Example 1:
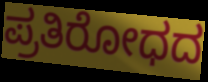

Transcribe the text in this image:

ಪ್ರತಿರೋಧದ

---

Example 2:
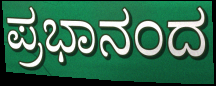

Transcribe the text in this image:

ಪ್ರಭಾನಂದ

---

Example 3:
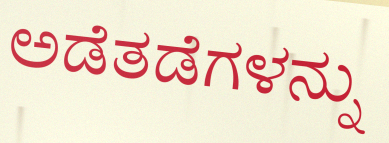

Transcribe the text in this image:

ಅಡೆತಡೆಗಳನ್ನು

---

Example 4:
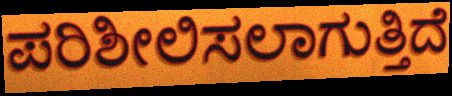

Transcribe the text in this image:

ಪರಿಶೀಲಿಸಲಾಗುತ್ತಿದೆ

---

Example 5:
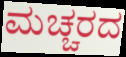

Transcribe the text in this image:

ಮಚ್ಚರದ